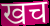
खच